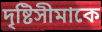
দৃষ্টিসীমাকে